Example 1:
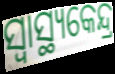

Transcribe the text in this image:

ସ୍ୱାସ୍ଥ୍ୟକେନ୍ଦ୍ର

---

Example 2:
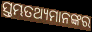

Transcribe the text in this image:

ସ୍ତମ୍ଭତଥ୍ୟମାନଙ୍କର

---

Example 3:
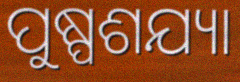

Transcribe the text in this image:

ପୁଷ୍ପଶଯ୍ୟା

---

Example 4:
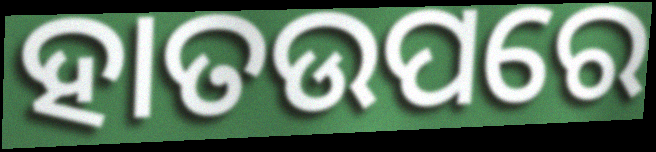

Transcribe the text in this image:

ହାତଉପରେ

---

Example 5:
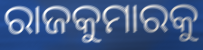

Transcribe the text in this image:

ରାଜକୁମାରକୁ